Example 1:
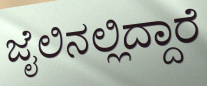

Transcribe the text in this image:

ಜೈಲಿನಲ್ಲಿದ್ದಾರೆ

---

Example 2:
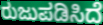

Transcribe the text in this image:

ರುಜುಪಡಿಸಿದೆ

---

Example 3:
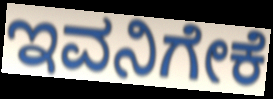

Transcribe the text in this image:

ಇವನಿಗೇಕೆ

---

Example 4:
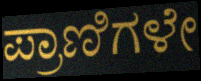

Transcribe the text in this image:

ಪ್ರಾಣಿಗಳೇ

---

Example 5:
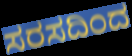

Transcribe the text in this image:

ಸರಸದಿಂದ